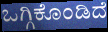
ಒಗ್ಗಿಕೊಂಡಿದೆ